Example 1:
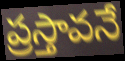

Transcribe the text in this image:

ప్రస్తావనే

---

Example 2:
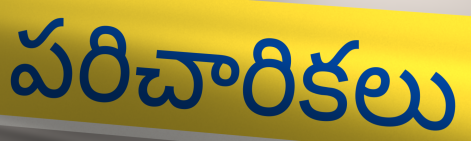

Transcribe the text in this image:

పరిచారికలు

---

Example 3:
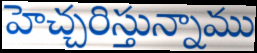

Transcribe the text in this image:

హెచ్చరిస్తున్నాము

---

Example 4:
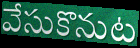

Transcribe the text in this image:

వేసుకొనుట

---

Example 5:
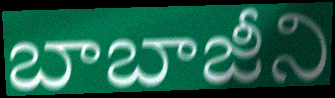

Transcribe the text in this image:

బాబాజీని